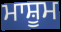
ਮਾਸ਼ੂਮ